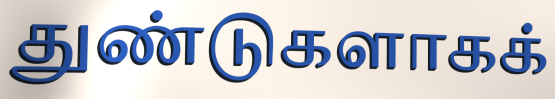
துண்டுகளாகக்